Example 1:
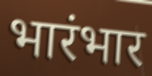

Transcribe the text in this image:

भारंभार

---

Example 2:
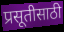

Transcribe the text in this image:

प्रसूतीसाठी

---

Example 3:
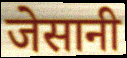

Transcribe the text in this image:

जेसानी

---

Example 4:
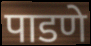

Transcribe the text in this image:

पाडणे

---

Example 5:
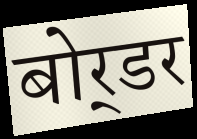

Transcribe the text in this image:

बोर्डर